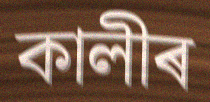
কালীৰ